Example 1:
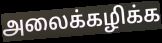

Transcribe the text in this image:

அலைக்கழிக்க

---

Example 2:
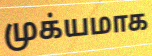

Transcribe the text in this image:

முக்யமாக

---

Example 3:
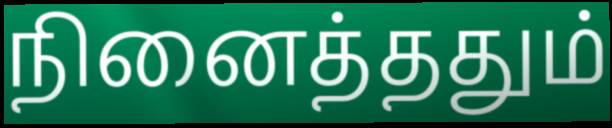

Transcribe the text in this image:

நினைத்ததும்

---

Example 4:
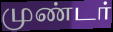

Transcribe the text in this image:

முண்டர்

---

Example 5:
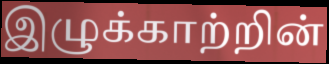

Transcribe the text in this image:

இழுக்காற்றின்